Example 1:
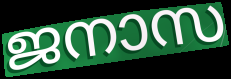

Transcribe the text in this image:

ജനാസ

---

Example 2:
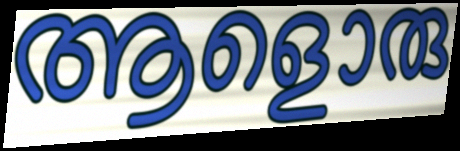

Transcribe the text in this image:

ആളൊരു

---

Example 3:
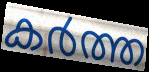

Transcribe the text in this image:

കർത്ത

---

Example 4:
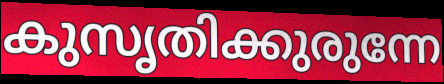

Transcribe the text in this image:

കുസൃതിക്കുരുന്നേ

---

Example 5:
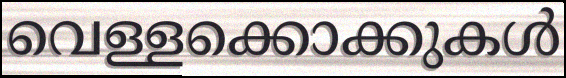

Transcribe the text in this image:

വെള്ളക്കൊക്കുകൾ